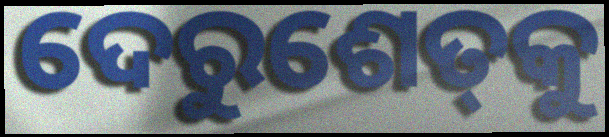
ଦେରୁଶେତ୍‌କୁ